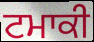
ਟਮਾਕੀ